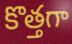
కొత్తగా